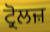
ਟ੍ਰੋਲਜ਼